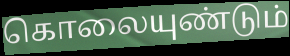
கொலையுண்டும்